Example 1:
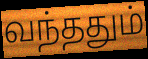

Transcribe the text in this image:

வந்ததும்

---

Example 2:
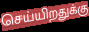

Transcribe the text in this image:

செய்யிறதுக்கு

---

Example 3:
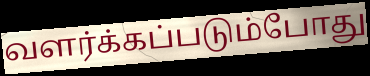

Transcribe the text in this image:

வளர்க்கப்படும்போது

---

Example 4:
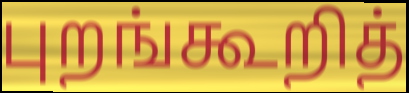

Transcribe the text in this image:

புறங்கூறித்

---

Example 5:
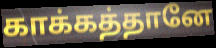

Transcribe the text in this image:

காக்கத்தானே